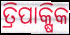
ତ୍ରିପାକ୍ଷିକ